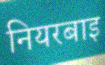
नियरबाइ